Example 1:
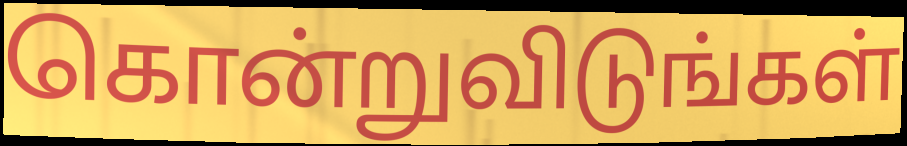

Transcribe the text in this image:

கொன்றுவிடுங்கள்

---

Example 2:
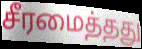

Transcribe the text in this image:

சீரமைத்தது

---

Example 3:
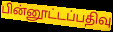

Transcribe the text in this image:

பின்னூட்டப்பதிவு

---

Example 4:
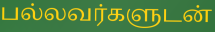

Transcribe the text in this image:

பல்லவர்களுடன்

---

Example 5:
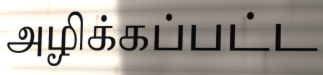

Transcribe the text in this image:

அழிக்கப்பட்ட